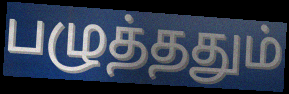
பழுத்ததும்